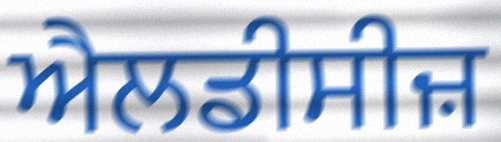
ਐਲਡੀਸੀਜ਼